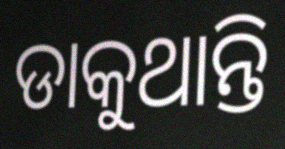
ଡାକୁଥାନ୍ତି